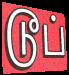
டூப்